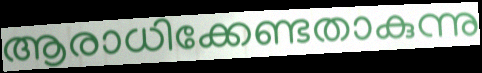
ആരാധിക്കേണ്ടതാകുന്നു